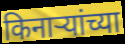
किनाऱ्यांच्या